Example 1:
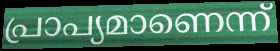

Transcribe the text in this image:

പ്രാപ്യമാണെന്ന്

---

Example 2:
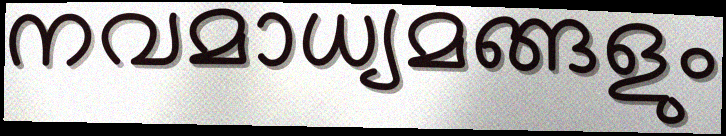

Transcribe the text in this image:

നവമാധ്യമങ്ങളും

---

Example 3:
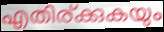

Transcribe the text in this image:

എതിര്ക്കുകയും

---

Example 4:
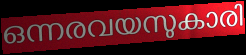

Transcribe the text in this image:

ഒന്നരവയസുകാരി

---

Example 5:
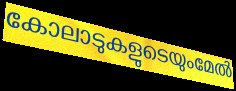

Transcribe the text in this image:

കോലാടുകളുടെയുംമേൽ